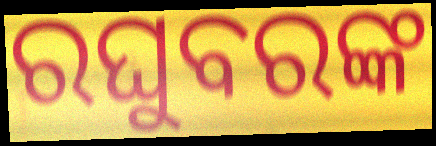
ରଘୁବରଙ୍କ